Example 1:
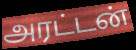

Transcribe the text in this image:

அரட்டன்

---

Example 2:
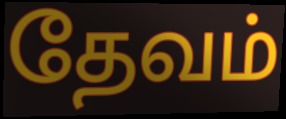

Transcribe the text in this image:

தேவம்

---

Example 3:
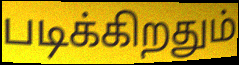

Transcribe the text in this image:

படிக்கிறதும்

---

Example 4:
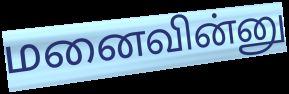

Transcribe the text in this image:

மனைவின்னு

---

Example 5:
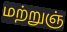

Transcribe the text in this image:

மற்றுஞ்